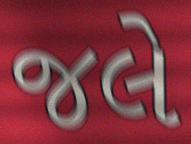
જલે